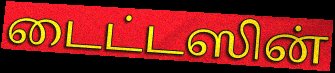
டைட்டஸின்